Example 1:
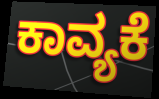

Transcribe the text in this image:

ಕಾವ್ಯಕೆ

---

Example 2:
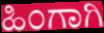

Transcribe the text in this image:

ಹಿಂಗಾಗಿ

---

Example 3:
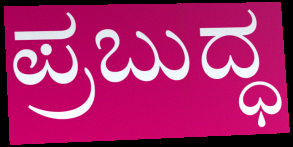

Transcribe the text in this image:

ಪ್ರಬುದ್ಧ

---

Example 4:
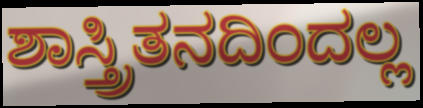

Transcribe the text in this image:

ಶಾಸ್ತ್ರಿತನದಿಂದಲ್ಲ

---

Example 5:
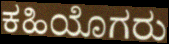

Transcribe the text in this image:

ಕಹಿಯೊಗರು